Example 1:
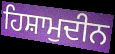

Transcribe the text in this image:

ਹਿਸ਼ਾਮੁਦੀਨ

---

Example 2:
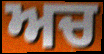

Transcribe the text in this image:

ਅਚ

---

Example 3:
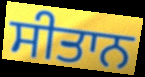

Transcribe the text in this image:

ਸੀਤਾਨ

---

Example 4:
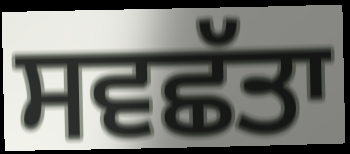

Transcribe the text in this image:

ਸਵਛੱਤਾ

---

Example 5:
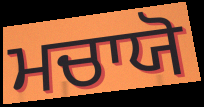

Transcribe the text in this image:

ਮਚਾਯੋ